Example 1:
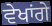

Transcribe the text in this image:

ਵੇਖਾਂਗੇ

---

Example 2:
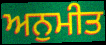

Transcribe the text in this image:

ਅਨੁਮੀਤ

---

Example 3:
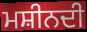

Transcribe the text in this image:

ਮਸ਼ੀਨਦੀ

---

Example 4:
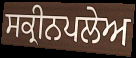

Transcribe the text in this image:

ਸਕ੍ਰੀਨਪਲੇਅ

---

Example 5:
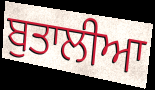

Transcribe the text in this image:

ਬੁਤਾਲੀਆ